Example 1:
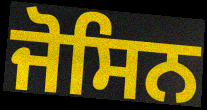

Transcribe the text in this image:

ਜੋਸਿਨ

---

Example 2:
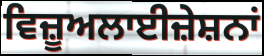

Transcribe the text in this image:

ਵਿਜ਼ੂਅਲਾਈਜ਼ੇਸ਼ਨਾਂ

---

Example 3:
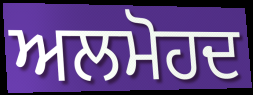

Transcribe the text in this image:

ਅਲਮੋਹਦ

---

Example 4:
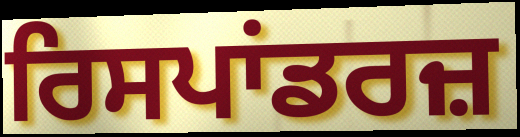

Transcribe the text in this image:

ਰਿਸਪਾਂਡਰਜ਼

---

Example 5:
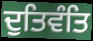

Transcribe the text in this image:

ਦੁਤਿਵੰਤਿ